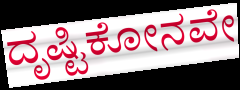
ದೃಷ್ಟಿಕೋನವೇ